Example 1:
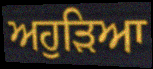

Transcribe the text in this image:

ਅਹੁੜਿਆ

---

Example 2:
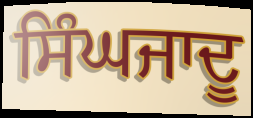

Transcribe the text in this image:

ਸਿੰਘਜਾਦੂ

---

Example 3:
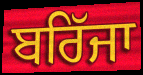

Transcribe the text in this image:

ਬਰਿੱਜਾ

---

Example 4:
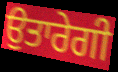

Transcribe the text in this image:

ਉਤਾਰੇਗੀ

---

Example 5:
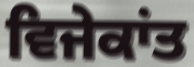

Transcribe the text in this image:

ਵਿਜੇਕਾਂਤ